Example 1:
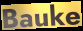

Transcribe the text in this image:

Bauke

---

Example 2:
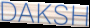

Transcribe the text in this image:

DAKSH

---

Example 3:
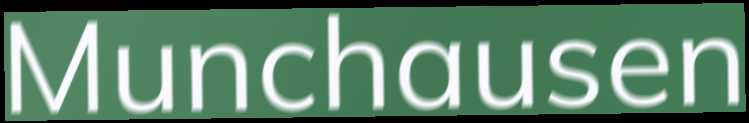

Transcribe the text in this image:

Munchausen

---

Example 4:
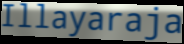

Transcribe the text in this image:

Illayaraja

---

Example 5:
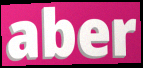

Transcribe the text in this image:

aber